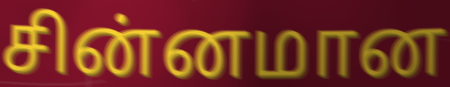
சின்னமான